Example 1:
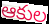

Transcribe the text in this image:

ఆకుల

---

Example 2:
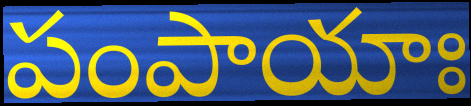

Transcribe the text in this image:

పంపాయాః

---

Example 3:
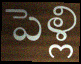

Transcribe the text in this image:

పెళ్లి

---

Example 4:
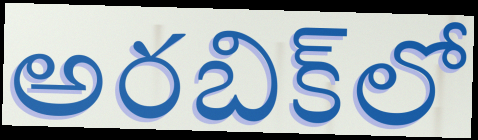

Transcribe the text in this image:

అరబిక్‌లో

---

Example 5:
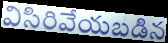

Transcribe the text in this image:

విసిరివేయబడిన